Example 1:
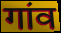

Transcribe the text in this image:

गांव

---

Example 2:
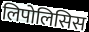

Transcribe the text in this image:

लिपोलिसिस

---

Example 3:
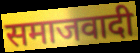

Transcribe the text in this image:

समाजवादी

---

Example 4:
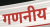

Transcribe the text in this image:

गणनीय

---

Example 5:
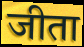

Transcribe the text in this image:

जीता